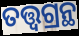
ତତ୍ତ୍ୱଗ୍ରନ୍ଥ